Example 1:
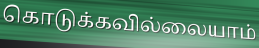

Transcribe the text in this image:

கொடுக்கவில்லையாம்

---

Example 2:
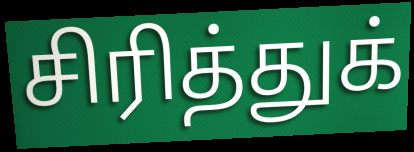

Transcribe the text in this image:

சிரித்துக்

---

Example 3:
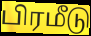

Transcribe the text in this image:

பிரமீடு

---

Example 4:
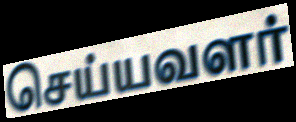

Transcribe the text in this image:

செய்யவளர்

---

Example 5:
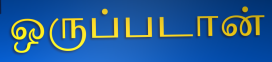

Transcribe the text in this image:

ஒருப்படான்